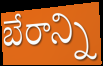
బేరాన్ని